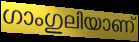
ഗാംഗുലിയാണ്